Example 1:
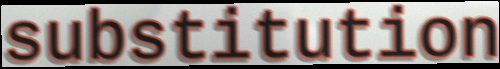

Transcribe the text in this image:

substitution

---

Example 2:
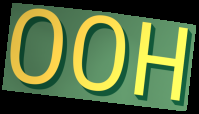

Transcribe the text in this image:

OOH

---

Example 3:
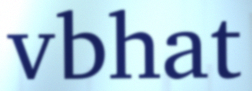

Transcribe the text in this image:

vbhat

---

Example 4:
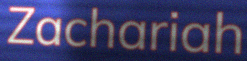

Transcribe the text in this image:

Zachariah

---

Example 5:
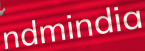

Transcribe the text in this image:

ndmindia